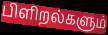
பிளிறல்களும்